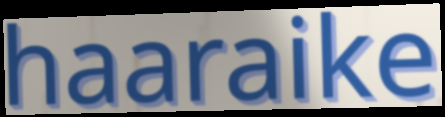
haaraike